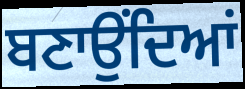
ਬਣਾਉਂਦਿਆਂ